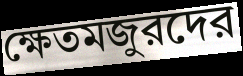
ক্ষেতমজুরদের